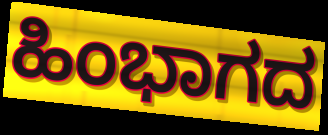
ಹಿಂಭಾಗದ